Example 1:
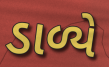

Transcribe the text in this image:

ડાળ્યે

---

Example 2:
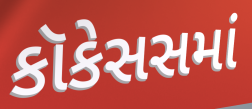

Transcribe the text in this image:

કૉકેસસમાં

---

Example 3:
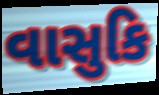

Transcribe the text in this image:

વાસુકિ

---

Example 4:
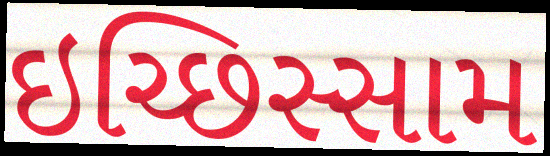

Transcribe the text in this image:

ઇચ્છિસ્સામ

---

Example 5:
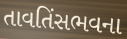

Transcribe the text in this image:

તાવતિંસભવના